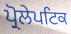
ਪ੍ਰੋਲੇਪਟਿਕ